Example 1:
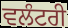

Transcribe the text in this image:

ਵਲੰਟਰੀ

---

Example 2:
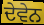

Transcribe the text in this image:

ਦੇਵੇਨ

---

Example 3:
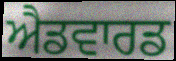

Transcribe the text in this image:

ਐਡਵਾਰਡ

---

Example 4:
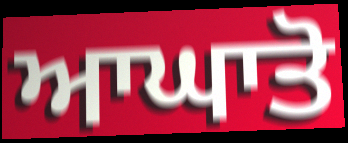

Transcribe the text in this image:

ਆਘਾਤੋ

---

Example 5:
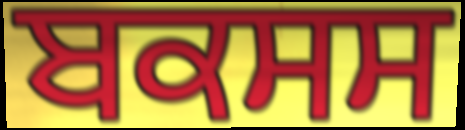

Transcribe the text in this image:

ਬਕਸਸ